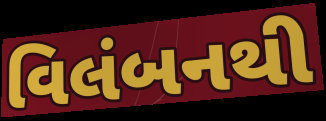
વિલંબનથી